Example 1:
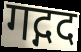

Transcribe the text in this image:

गद्गद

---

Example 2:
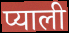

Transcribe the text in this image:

प्याली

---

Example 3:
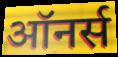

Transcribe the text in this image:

ऑनर्स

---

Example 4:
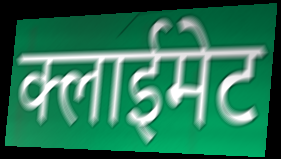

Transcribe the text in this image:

क्लाईमेट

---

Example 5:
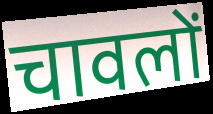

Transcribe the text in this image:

चावलों